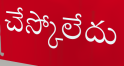
చేస్కోలేదు